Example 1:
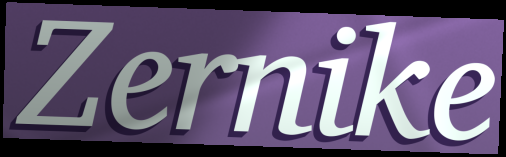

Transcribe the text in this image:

Zernike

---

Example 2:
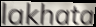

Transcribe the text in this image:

lakhata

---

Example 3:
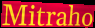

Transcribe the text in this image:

Mitraho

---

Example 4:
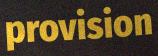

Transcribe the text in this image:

provision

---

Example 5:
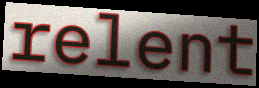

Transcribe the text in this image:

relent